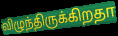
விழுந்திருக்கிறதா